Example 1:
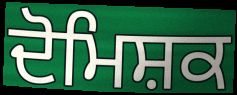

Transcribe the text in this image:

ਦੋਮਿਸ਼ਕ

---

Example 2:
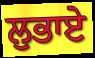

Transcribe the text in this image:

ਲੁਭਾਏ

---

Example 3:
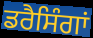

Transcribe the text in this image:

ਡਰੈਸਿੰਗਾਂ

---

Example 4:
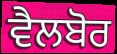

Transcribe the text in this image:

ਵੈਲਬੋਰ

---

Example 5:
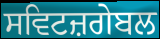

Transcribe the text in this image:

ਸਵਿਟਜ਼ਗੇਬਲ